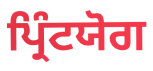
ਪ੍ਰਿੰਟਯੋਗ